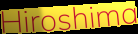
Hiroshima